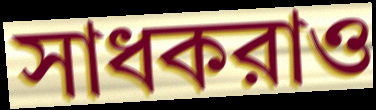
সাধকরাও